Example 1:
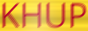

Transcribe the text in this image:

KHUP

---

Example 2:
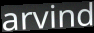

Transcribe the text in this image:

arvind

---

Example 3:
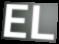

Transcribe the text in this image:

EL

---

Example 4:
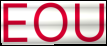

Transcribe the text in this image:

EOU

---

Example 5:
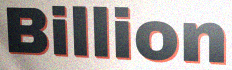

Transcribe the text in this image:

Billion